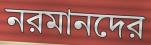
নরমানদের